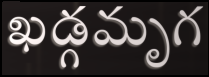
ఖడ్గమృగ